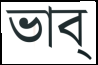
ভাব্